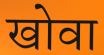
खोवा